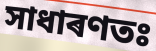
সাধাৰণতঃ